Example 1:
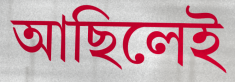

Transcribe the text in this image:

আছিলেই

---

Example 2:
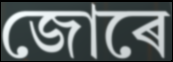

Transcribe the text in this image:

জোৰে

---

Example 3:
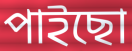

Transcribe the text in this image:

পাইছো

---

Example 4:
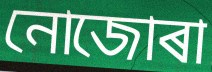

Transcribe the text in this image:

নোজোৰা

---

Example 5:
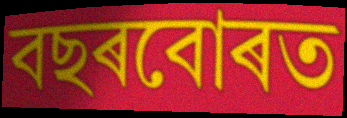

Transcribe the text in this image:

বছৰবোৰত